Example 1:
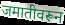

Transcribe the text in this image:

जमातीवरून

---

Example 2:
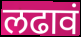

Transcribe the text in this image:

लढावं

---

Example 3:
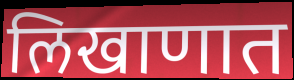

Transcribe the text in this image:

लिखाणात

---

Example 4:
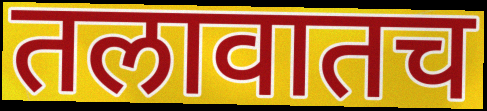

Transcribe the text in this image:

तलावातच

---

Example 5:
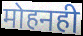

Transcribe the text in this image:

मोहनही